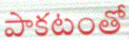
పాకటంతో